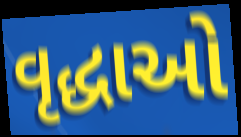
વૃદ્ધાઓ